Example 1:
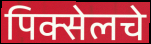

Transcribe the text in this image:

पिक्सेलचे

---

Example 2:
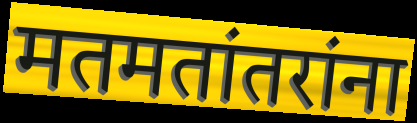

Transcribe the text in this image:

मतमतांतरांना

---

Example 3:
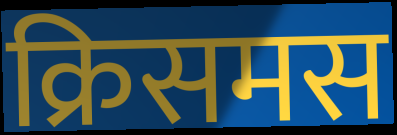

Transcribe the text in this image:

क्रिसमस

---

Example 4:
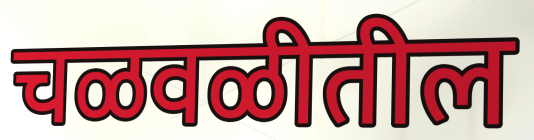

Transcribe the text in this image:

चळवळीतील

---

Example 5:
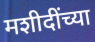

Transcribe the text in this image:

मशीदींच्या